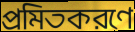
প্রমিতকরণে